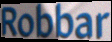
Robbar